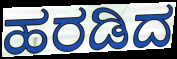
ಹರಡಿದ